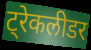
ट्रेकलीडर